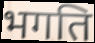
भगति